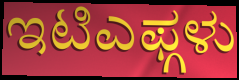
ಇಟಿಎಫ್ಗಳು